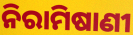
ନିରାମିଷାଣୀ